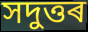
সদুত্তৰ